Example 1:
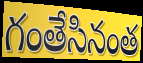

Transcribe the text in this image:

గంతేసినంత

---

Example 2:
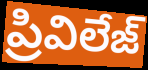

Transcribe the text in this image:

ప్రివిలేజ్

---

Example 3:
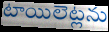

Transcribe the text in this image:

టాయిలెట్లను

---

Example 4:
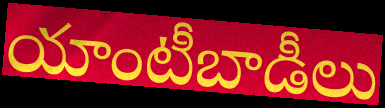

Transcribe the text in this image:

యాంటీబాడీలు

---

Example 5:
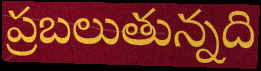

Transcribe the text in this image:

ప్రబలుతున్నది